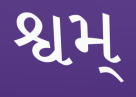
શ્વમ્